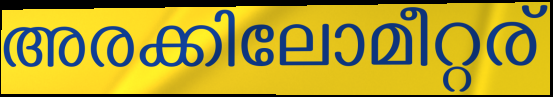
അരക്കിലോമീറ്റര്